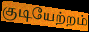
குடியேற்றம்